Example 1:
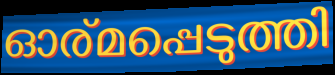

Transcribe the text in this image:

ഓര്മപ്പെടുത്തി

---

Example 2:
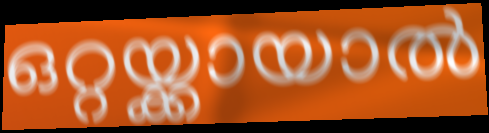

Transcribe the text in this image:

ഒറ്റയ്ക്കായാൽ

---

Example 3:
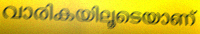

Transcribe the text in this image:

വാരികയിലൂടെയാണ്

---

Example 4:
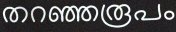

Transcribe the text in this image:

തറഞ്ഞരൂപം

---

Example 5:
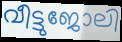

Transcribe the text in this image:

വീട്ടുജോലി